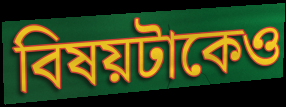
বিষয়টাকেও